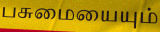
பசுமையையும்